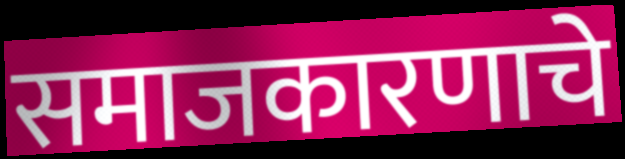
समाजकारणाचे